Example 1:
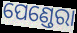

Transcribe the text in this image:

ପେଣ୍ଡେରା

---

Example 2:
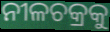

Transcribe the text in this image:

ନୀଳଚକ୍ରକୁ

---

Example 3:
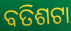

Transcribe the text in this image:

ବତିଶଟା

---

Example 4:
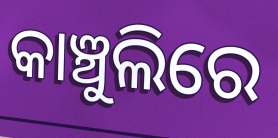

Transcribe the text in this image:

କାଞ୍ଚୁଲିରେ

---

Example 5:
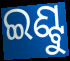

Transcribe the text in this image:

ଇଣ୍ଟୁ